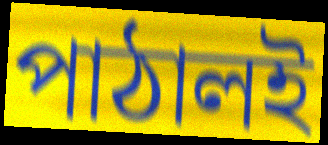
পাঠালই